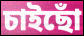
চাইছোঁ